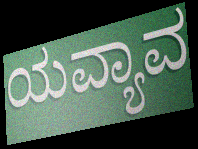
ಯವ್ಯಾವ